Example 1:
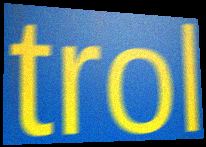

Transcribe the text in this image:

trol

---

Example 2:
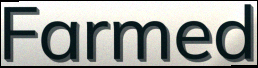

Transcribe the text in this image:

Farmed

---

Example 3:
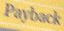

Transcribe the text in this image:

Payback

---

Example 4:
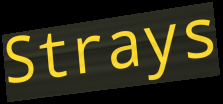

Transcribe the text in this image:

Strays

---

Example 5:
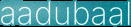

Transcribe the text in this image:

aadubaal